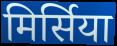
मिर्सिया